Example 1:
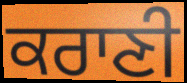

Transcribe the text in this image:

ਕਰਾਣੀ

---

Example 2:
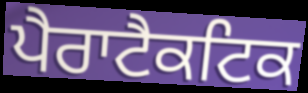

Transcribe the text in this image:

ਪੈਰਾਟੈਕਟਿਕ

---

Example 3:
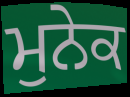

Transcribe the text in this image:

ਮੁਨੇਕ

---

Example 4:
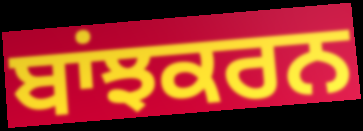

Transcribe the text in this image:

ਬਾਂਝਕਰਨ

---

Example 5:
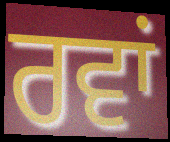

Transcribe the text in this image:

ਰਵਾਂ